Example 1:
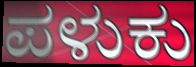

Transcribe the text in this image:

ಪಳುಕು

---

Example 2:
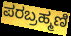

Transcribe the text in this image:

ಪರಬ್ರಹ್ಮಣಿ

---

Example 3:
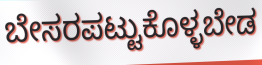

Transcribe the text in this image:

ಬೇಸರಪಟ್ಟುಕೊಳ್ಳಬೇಡ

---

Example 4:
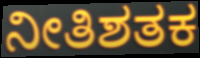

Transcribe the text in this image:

ನೀತಿಶತಕ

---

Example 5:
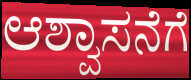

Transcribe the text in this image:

ಆಶ್ವಾಸನೆಗೆ